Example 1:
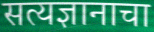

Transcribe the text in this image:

सत्यज्ञानाचा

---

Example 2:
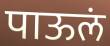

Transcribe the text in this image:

पाऊलं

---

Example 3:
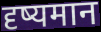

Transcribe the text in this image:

दृष्यमान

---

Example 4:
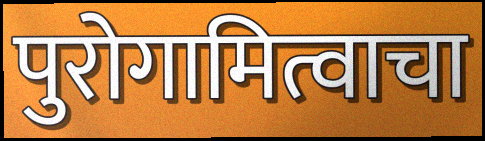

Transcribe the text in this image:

पुरोगामित्वाचा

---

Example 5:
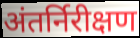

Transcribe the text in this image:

अंतर्निरीक्षण